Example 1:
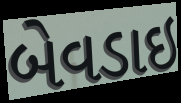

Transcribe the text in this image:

બેવડાઇ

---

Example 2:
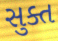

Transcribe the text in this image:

સુક્ત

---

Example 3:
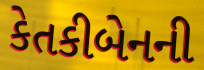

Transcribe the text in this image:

કેતકીબેનની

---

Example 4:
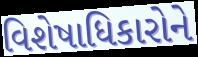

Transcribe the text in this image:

વિશેષાધિકારોને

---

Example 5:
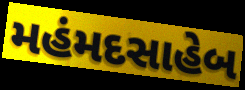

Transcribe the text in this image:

મહંમદસાહેબ